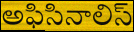
అఫిసినాలిస్